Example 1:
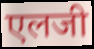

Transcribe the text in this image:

एलजी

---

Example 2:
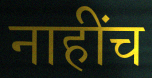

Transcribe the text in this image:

नाहींच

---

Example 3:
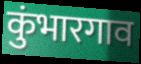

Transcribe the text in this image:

कुंभारगाव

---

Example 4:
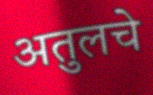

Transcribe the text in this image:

अतुलचे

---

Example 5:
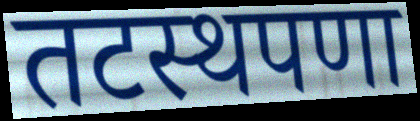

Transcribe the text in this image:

तटस्थपणा